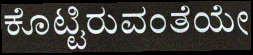
ಕೊಟ್ಟಿರುವಂತೆಯೇ